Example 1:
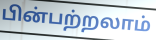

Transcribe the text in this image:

பின்பற்றலாம்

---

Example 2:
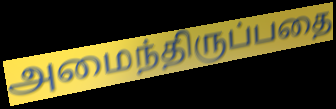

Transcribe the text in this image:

அமைந்திருப்பதை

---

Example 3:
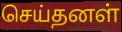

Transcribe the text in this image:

செய்தனள்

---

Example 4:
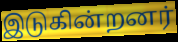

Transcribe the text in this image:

இடுகின்றனர்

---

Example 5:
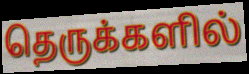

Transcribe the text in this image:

தெருக்களில்